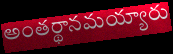
అంతర్థానమయ్యారు